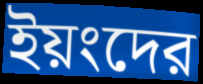
ইয়ংদের